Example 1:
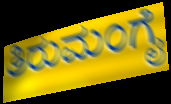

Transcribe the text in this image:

ತಿರುಮಂಗೈ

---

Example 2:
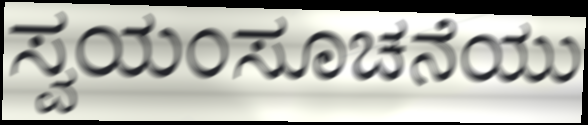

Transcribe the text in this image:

ಸ್ವಯಂಸೂಚನೆಯು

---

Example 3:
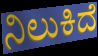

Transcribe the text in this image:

ನಿಲುಕಿದೆ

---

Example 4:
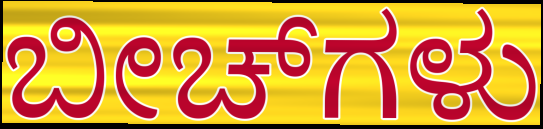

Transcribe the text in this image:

ಬೀಚ್‌ಗಳು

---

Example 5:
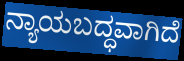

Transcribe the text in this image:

ನ್ಯಾಯಬದ್ಧವಾಗಿದೆ